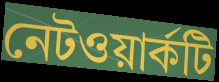
নেটওয়ার্কটি